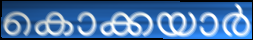
കൊക്കയാർ